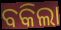
ବକିଲା